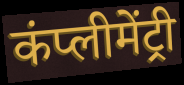
कंप्लीमेंट्री